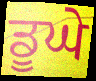
ਡੂਘੇ